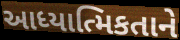
આધ્યાત્મિકતાને